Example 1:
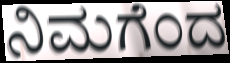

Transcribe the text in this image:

ನಿಮಗೆಂದ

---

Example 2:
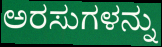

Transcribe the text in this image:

ಅರಸುಗಳನ್ನು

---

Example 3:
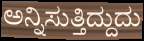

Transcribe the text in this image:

ಅನ್ನಿಸುತ್ತಿದ್ದುದು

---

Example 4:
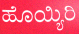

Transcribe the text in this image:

ಹೊಯ್ಯಿರಿ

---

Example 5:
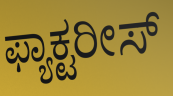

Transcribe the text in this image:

ಫ್ಯಾಕ್ಟರೀಸ್